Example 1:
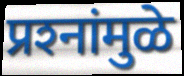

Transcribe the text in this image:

प्रश्‍नांमुळे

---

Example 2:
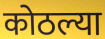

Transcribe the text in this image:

कोठल्या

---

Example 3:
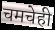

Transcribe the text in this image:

चमचेही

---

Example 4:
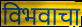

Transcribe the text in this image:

विभवाचा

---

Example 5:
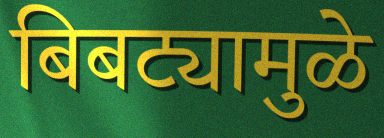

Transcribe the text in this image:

बिबट्यामुळे